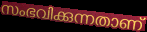
സംഭവിക്കുന്നതാണ്